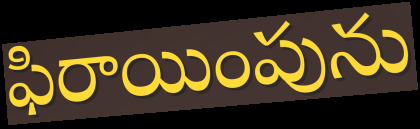
ఫిరాయింపును